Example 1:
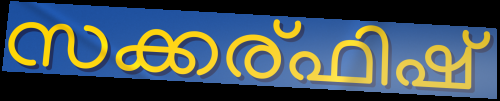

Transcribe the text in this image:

സക്കര്ഫിഷ്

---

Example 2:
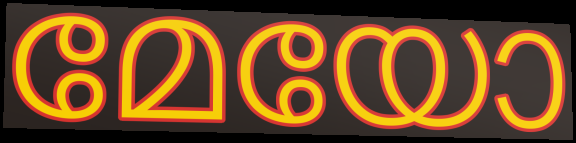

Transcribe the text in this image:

മേയോ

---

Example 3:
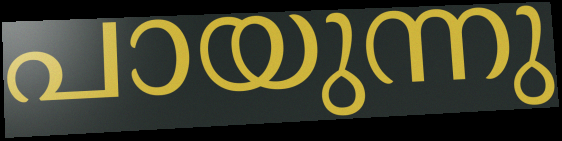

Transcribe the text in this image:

പായുന്നു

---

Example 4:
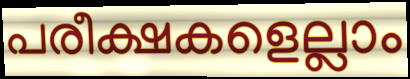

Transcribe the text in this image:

പരീക്ഷകളെല്ലാം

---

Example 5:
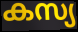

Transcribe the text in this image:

കസ്യ